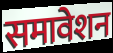
समावेशन